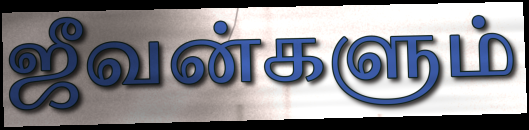
ஜீவன்களும்